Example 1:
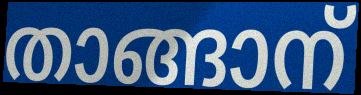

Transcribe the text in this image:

താങ്ങാന്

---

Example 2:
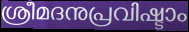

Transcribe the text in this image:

ശ്രീമദനുപ്രവിഷ്ടാം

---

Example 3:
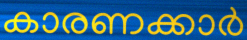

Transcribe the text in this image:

കാരണക്കാർ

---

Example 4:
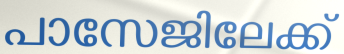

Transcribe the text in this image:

പാസേജിലേക്ക്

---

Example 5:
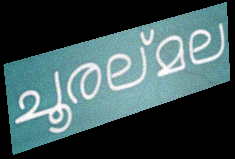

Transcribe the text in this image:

ചൂരല്മല